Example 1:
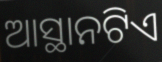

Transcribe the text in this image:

ଆସ୍ଥାନଟିଏ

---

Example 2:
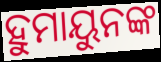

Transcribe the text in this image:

ହୁମାୟୁନଙ୍କ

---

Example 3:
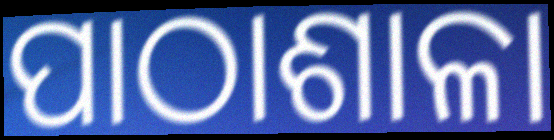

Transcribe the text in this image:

ପାଠାଶାଳା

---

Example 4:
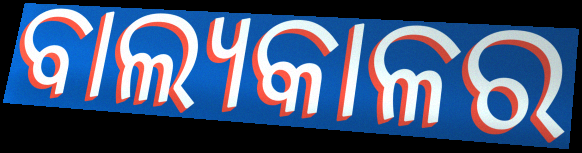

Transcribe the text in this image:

ବାଲ୍ୟକାଳର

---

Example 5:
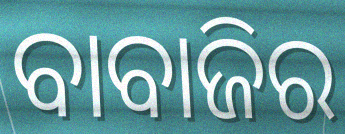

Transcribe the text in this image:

ବାବାଜିର